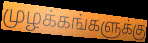
முழக்கங்களுக்கு